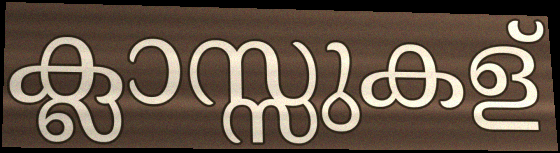
ക്ലാസ്സുകള്